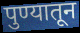
पुण्यातून